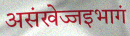
असंखेज्जइभागं